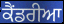
ਕੈਂਡਰੀਆ